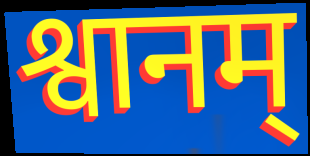
श्वानम्